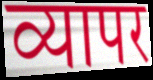
व्यापर